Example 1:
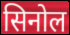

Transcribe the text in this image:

सिनोल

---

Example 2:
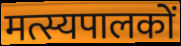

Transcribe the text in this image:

मत्स्यपालकों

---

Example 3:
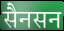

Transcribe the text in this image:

सैनसन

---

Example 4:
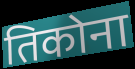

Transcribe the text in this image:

तिकोना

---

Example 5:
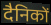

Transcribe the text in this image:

दैनिकों